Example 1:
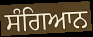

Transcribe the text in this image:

ਸੰਗਿਆਨ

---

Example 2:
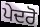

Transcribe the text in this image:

ਪੇਦਰੋ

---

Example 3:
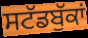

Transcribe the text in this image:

ਸਟੱਡਬੁੱਕਾਂ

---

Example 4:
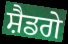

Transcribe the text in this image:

ਸ਼ੈਡਗੇ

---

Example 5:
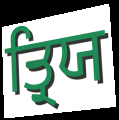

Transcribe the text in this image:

ਤ੍ਰਿਯ